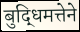
बुद्धिमत्तेने